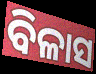
ବିଳାସ